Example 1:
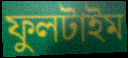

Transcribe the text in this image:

ফুলটাইম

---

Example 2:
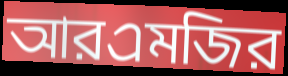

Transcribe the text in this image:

আরএমজির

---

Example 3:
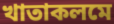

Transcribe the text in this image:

খাতাকলমে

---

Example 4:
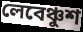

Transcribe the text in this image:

লেবেঞ্চুশ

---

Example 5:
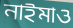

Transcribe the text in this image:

নাইমাও